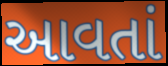
આવતાં